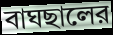
বাঘছালের